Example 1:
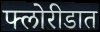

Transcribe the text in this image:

फ्लोरीडात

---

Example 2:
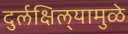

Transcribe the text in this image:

दुर्लक्षिल्यामुळे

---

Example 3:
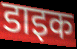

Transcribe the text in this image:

डाइक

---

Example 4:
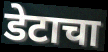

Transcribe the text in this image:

डेटाचा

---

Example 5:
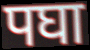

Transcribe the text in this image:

पघा